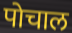
पोचाल